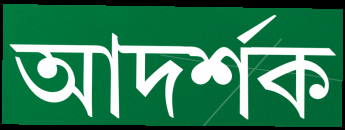
আদৰ্শক